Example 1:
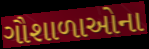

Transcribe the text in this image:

ગૌશાળાઓના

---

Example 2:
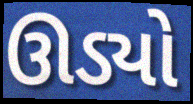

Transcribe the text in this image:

ઊડ્યો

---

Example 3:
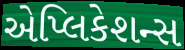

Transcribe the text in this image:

એપ્લિકેશન્સ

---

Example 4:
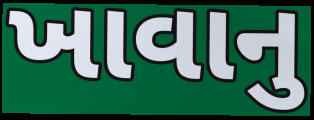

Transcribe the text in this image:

ખાવાનુ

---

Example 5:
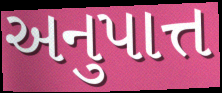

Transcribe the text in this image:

અનુપાત્ત